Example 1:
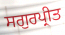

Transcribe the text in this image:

ਸਗੁਰਪ੍ਰੀਤ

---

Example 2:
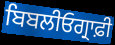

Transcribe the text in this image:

ਬਿਬਲੀਓਗ੍ਰਾਫ਼ੀ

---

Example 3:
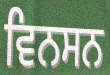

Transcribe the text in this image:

ਵਿਨਸਨ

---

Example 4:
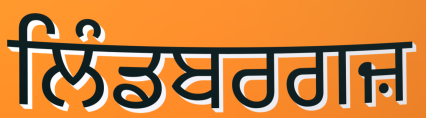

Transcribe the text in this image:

ਲਿੰਡਬਰਗਜ਼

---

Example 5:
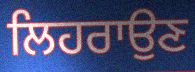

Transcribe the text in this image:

ਲਿਹਰਾਉਣ